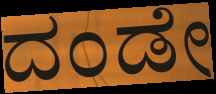
ದಂಡೇ